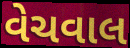
વેચવાલ